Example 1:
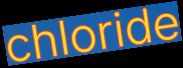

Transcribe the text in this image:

chloride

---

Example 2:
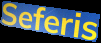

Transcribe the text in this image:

Seferis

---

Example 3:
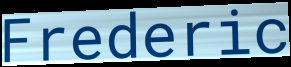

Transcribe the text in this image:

Frederic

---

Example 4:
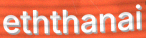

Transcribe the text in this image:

eththanai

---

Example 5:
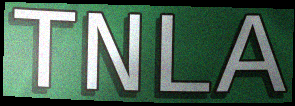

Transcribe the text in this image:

TNLA